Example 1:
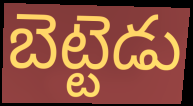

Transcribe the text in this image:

బెట్టెడు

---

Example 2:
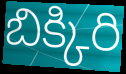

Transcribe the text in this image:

బిక్కిరి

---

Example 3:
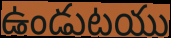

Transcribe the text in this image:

ఉండుటయు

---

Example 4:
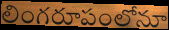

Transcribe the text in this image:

లింగరూపంలోనూ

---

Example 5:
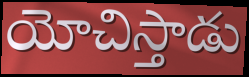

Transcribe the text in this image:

యోచిస్తాడు